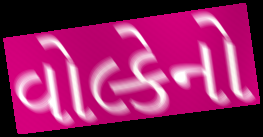
વોલ્કેનો